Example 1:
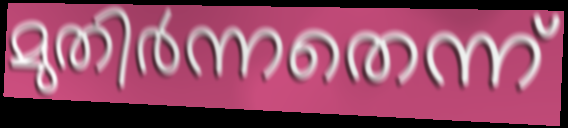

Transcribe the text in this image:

മുതിർന്നതെന്ന്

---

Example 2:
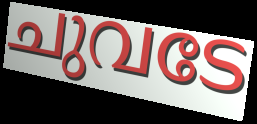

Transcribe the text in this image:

ചുവടേ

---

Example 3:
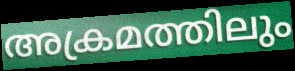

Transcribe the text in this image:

അക്രമത്തിലും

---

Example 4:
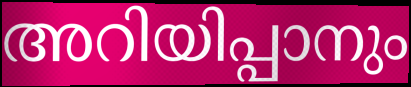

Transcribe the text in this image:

അറിയിപ്പാനും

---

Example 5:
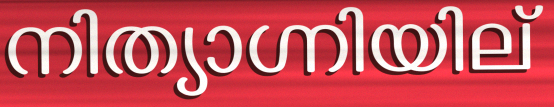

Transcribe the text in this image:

നിത്യാഗ്നിയില്